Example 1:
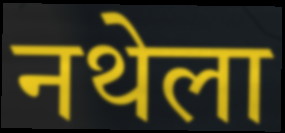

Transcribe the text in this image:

नथेला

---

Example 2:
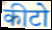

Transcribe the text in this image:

कीटो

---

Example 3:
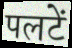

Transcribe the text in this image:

पलटें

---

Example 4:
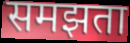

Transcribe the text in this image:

समझता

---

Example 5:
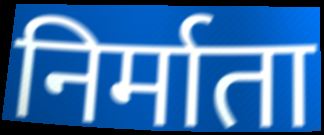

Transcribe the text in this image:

निर्माता